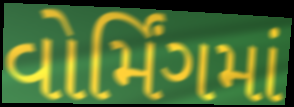
વોર્મિંગમાં